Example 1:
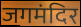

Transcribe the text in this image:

जगमंदिर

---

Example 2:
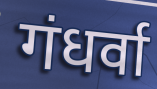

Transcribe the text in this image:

गंधर्वा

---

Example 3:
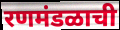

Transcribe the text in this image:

रणमंडळाची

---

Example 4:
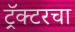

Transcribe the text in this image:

ट्रॅक्टरचा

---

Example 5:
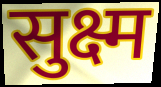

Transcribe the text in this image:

सुक्ष्म